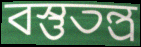
বস্তুতন্ত্র